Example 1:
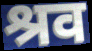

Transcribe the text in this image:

श्रव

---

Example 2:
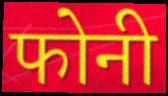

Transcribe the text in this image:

फोनी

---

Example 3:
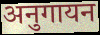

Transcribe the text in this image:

अनुगायन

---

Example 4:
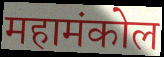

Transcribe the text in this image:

महामंकोल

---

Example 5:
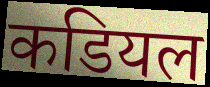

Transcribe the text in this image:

कडियल